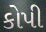
કોપી